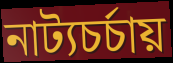
নাট্যচর্চায়